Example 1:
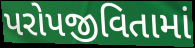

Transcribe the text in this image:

પરોપજીવિતામાં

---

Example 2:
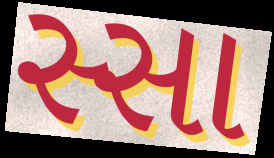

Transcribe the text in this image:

સ્સા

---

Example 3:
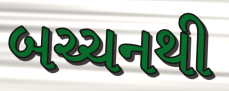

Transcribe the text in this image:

બચ્ચનથી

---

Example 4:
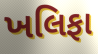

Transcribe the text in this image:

ખલિફા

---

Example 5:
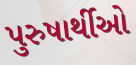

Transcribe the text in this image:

પુરુષાર્થીઓ